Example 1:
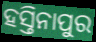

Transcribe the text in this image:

ହସ୍ତିନାପୁର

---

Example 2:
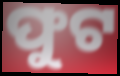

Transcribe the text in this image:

ଫୁଟ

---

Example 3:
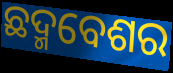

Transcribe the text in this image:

ଛଦ୍ମବେଶର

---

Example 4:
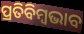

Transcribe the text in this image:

ପ୍ରତିବିମ୍ବଭାବ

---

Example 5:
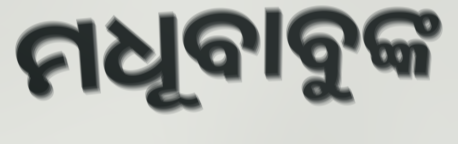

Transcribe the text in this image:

ମଧୂବାବୁଙ୍କ